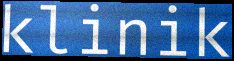
klinik